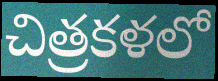
చిత్రకళలో